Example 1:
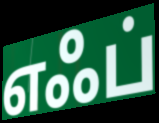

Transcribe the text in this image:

எஃப்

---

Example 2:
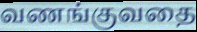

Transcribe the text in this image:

வணங்குவதை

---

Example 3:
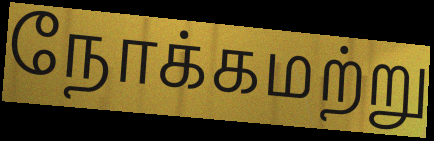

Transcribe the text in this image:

நோக்கமற்று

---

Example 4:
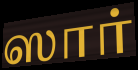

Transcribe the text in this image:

ஸார்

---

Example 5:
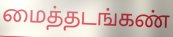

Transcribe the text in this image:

மைத்தடங்கண்